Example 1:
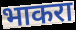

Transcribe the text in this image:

भाकरा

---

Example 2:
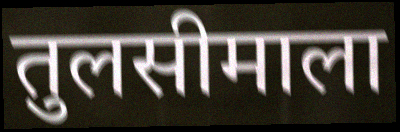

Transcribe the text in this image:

तुलसीमाला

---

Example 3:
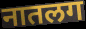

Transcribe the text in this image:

नातलग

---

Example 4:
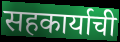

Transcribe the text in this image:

सहकार्याची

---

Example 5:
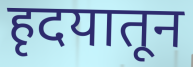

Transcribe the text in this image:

हृदयातून